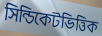
সিন্ডিকেটভিত্তিক